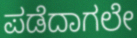
ಪಡೆದಾಗಲೇ